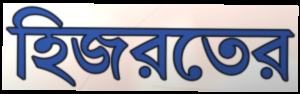
হিজরতের